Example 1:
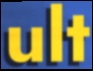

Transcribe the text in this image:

ult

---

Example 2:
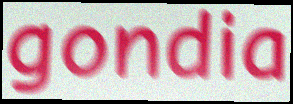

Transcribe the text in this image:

gondia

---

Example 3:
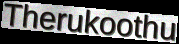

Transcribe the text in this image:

Therukoothu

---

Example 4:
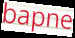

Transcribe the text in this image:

bapne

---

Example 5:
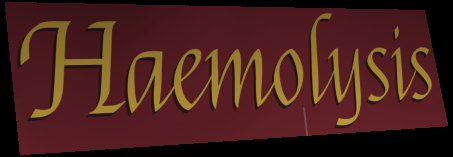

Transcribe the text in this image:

Haemolysis